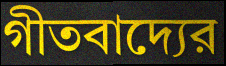
গীতবাদ্যের